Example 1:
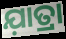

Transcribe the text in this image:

ଯ଼ାତ୍ରା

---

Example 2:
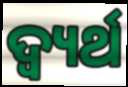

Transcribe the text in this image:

ଦ୍ୱ୍ୟର୍ଥ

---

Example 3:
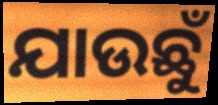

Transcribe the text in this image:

ଯାଉଛୁଁ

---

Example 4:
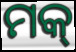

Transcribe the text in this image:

ମକ୍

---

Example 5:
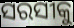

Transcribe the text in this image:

ସରସୀକୁ